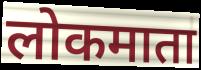
लोकमाता